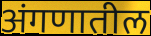
अंगणातील